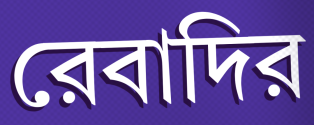
রেবাদির